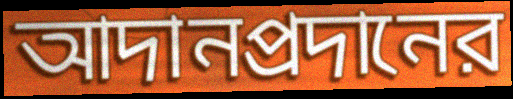
আদানপ্রদানের